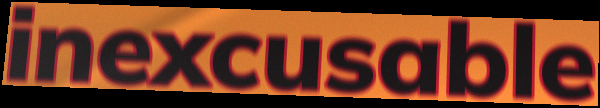
inexcusable